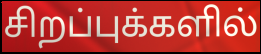
சிறப்புக்களில்